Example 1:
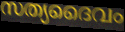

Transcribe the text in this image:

സത്യദൈവം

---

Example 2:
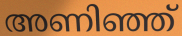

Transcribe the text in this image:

അണിഞ്ഞ്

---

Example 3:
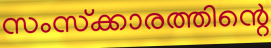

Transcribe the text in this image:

സംസ്‌ക്കാരത്തിന്റെ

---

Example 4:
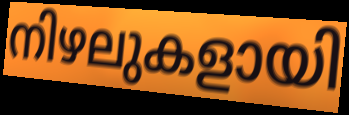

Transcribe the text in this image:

നിഴലുകളായി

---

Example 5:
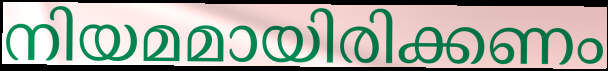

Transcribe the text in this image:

നിയമമായിരിക്കണം